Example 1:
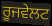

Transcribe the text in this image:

ਰੂਜਵੇਲਟ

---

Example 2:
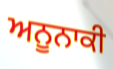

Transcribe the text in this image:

ਅਨੂਨਾਕੀ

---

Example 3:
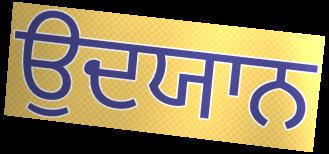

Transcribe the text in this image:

ਉਦਯਾਨ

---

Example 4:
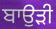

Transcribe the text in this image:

ਬਾਉੜੀ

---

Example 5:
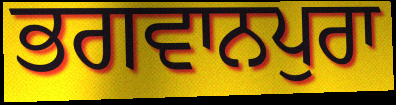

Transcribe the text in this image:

ਭਗਵਾਨਪੁਰਾ